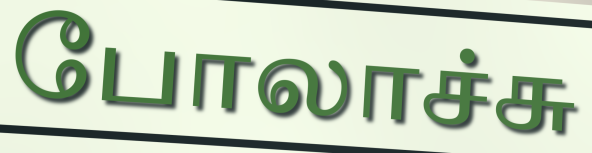
போலாச்சு